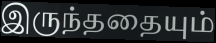
இருந்ததையும்